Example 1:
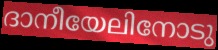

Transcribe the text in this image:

ദാനീയേലിനോടു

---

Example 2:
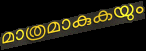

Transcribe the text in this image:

മാത്രമാകുകയും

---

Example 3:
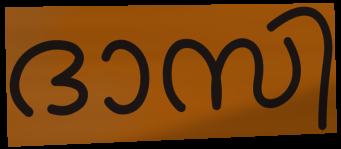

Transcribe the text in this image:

ദാസി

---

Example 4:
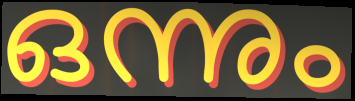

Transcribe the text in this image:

ഒന്നും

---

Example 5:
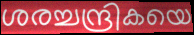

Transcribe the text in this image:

ശരച്ചന്ദ്രികയെ